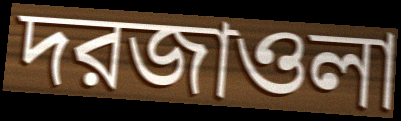
দরজাওলা